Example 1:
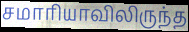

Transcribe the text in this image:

சமாரியாவிலிருந்த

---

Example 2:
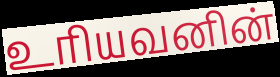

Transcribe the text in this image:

உரியவனின்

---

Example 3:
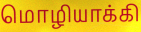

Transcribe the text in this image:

மொழியாக்கி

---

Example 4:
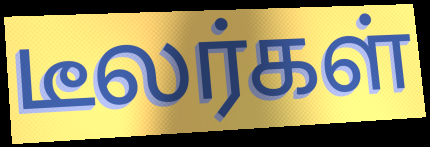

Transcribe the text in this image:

டீலர்கள்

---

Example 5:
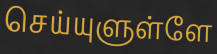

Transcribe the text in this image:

செய்யுளுள்ளே